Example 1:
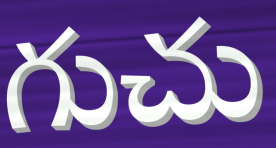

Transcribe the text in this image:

గుచు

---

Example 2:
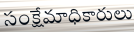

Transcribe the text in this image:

సంక్షేమాధికారులు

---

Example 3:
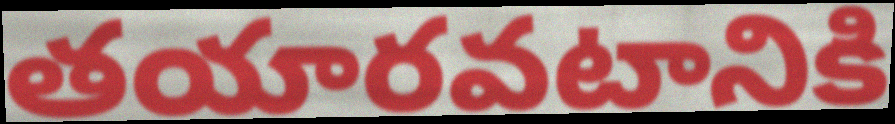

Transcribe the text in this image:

తయారవటానికి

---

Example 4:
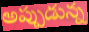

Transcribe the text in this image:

అప్పుడున్న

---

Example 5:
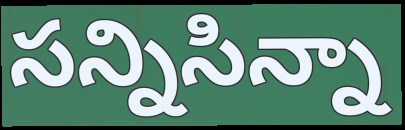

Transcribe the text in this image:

సన్నిసిన్నా